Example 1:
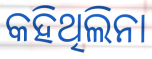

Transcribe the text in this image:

କହିଥିଲିନା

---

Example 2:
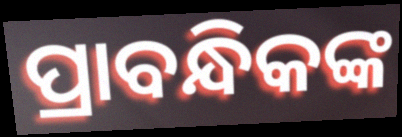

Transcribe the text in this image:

ପ୍ରାବନ୍ଧିକଙ୍କ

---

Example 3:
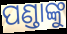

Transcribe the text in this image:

ପଣ୍ଡାଙ୍କୁ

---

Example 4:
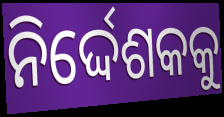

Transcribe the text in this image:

ନିର୍ଦ୍ଦେଶକକୁ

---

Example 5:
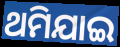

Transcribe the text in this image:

ଥମିଯାଇ